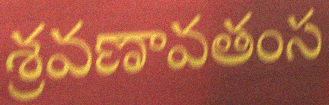
శ్రవణావతంస